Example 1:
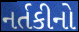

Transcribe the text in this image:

નર્તકીનો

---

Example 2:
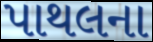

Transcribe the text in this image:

પાથલના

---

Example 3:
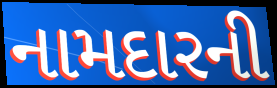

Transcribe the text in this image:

નામદારની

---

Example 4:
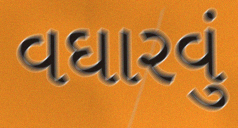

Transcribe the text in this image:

વઘારવું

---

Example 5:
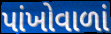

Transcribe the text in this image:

પાંખોવાળાં